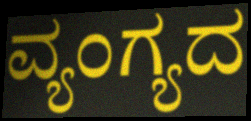
ವ್ಯಂಗ್ಯದ